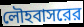
লৌহবাসরের